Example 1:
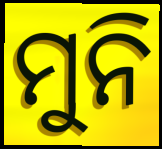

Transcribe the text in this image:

ମୁନି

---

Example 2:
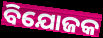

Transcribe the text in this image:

ବିଯୋଜକ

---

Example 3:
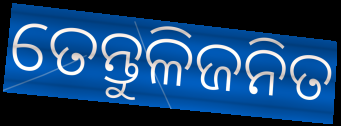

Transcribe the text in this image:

ତେନ୍ତୁଳିଜନିତ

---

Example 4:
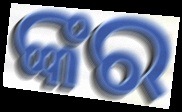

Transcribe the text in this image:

ଙ୍କର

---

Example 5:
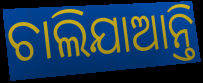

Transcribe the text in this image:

ଚାଲିଯାଆନ୍ତି